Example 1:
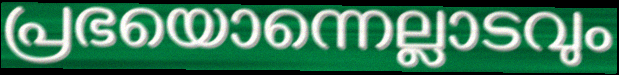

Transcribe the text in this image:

പ്രഭയൊന്നെല്ലാടവും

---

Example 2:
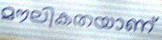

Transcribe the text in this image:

മൗലികതയാണ്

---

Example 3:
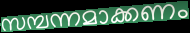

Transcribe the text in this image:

സമ്പന്നമാക്കണം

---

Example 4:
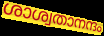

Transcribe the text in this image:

ശാശ്വതാനന്ദം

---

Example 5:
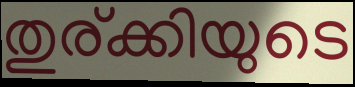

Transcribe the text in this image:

തുര്ക്കിയുടെ